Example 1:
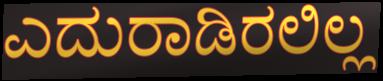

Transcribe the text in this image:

ಎದುರಾಡಿರಲಿಲ್ಲ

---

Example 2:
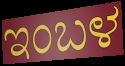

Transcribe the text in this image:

ಇಂಬಳ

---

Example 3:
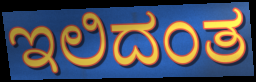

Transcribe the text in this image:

ಇಲಿದಂತ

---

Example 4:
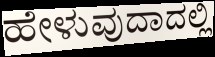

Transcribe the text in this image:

ಹೇಳುವುದಾದಲ್ಲಿ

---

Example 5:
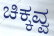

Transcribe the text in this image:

ಚಿಕ್ಕವ್ವ